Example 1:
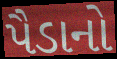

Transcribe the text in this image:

પૈડાનો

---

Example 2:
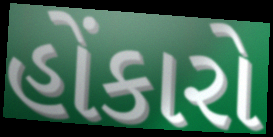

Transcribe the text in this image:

હોંકારો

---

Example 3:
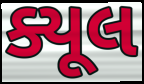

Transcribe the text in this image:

ક્યૂલ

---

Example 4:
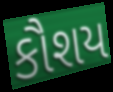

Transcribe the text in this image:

કૌશય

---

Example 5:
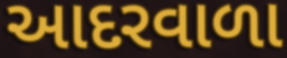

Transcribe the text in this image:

આદરવાળા